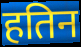
हतिन